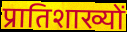
प्रातिशाख्यों